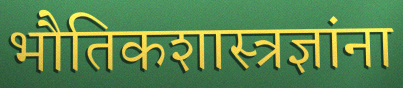
भौतिकशास्त्रज्ञांना